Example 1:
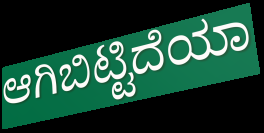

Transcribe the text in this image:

ಆಗಿಬಿಟ್ಟಿದೆಯಾ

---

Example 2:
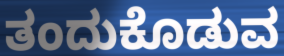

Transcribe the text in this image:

ತಂದುಕೊಡುವ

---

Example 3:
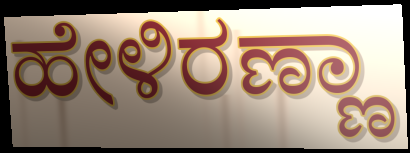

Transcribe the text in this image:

ಹೇಳಿರಣ್ಣಾ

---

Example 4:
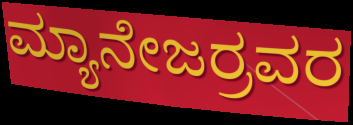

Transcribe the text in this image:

ಮ್ಯಾನೇಜರ್ರವರ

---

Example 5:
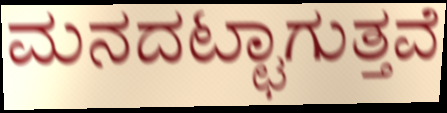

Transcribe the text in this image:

ಮನದಟ್ಟಾಗುತ್ತವೆ